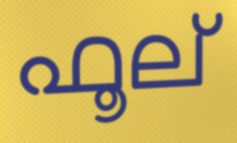
ഫൂല്